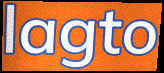
lagto